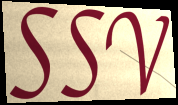
SSV